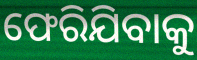
ଫେରିଯିବାକୁ